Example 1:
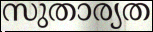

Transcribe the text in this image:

സുതാര്യത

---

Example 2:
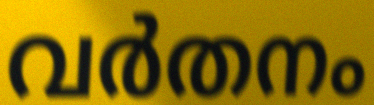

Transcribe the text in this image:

വർതനം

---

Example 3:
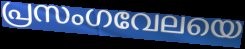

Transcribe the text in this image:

പ്രസംഗവേലയെ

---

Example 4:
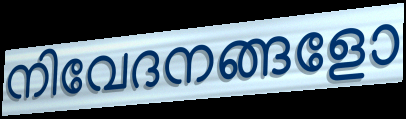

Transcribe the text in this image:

നിവേദനങ്ങളോ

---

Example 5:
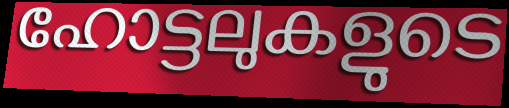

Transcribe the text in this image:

ഹോട്ടലുകളുടെ